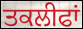
ਤਕਲੀਫਾਂ